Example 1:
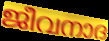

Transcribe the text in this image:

ജീവനാദ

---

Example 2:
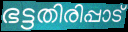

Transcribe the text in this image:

ഭട്ടതിരിപ്പാട്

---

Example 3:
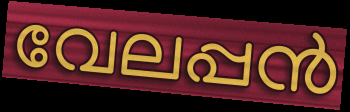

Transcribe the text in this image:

വേലപ്പൻ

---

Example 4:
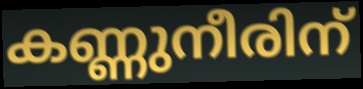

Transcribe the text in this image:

കണ്ണുനീരിന്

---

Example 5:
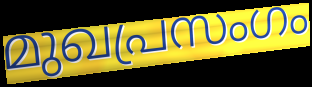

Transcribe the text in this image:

മുഖപ്രസംഗം